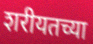
शरीयतच्या